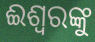
ଈଶ୍ଵରଙ୍କୁ